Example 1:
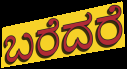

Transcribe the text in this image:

ಬರೆದರೆ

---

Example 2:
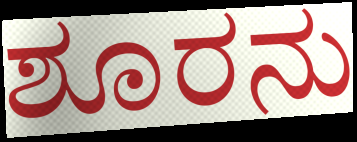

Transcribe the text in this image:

ಶೂರನು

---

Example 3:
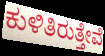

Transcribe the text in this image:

ಕುಳಿತಿರುತ್ತೇವೆ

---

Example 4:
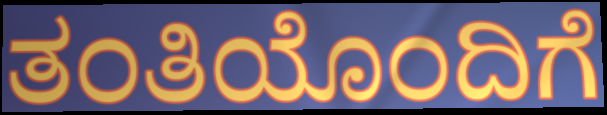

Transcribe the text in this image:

ತಂತಿಯೊಂದಿಗೆ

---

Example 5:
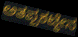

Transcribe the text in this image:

ಅತಪ್ಪಕಟ್ಠೇನ